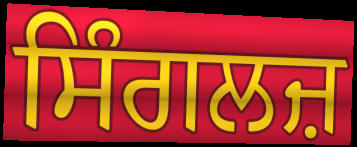
ਸਿੰਗਲਜ਼